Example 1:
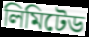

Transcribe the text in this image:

লিমিটেড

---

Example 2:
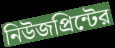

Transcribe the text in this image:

নিউজপ্রিন্টের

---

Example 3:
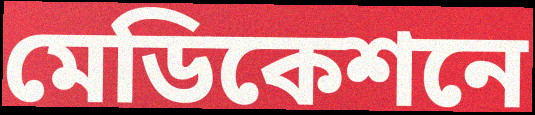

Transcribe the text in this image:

মেডিকেশনে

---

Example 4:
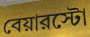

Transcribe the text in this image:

বেয়ারস্টো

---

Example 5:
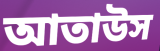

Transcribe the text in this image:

আতাউস